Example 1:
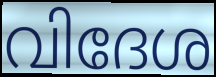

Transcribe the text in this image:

വിദേശ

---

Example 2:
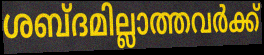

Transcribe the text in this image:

ശബ്ദമില്ലാത്തവർക്ക്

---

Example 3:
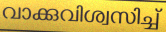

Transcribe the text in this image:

വാക്കുവിശ്വസിച്ച്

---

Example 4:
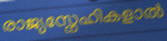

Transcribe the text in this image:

രാജ്യസ്നേഹികളാൽ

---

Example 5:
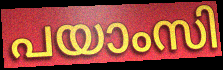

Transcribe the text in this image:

പയാംസി